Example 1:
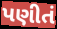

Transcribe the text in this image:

પણીતં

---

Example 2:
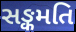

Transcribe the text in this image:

સઙ્કમતિ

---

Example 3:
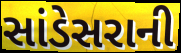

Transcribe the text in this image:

સાંડેસરાની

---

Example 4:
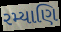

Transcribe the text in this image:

રમ્યાણિ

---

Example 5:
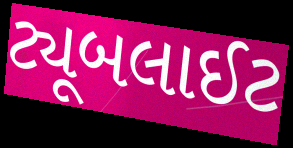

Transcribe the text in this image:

ટ્યૂબલાઈટ